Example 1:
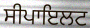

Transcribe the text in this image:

ਸੀਪਾਇਲਟ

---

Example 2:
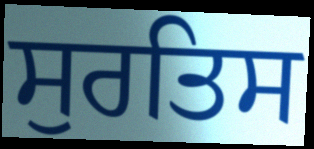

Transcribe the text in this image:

ਸੁਰਤਿਸ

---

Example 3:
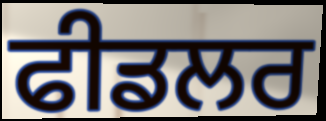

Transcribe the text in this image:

ਫੀਡਲਰ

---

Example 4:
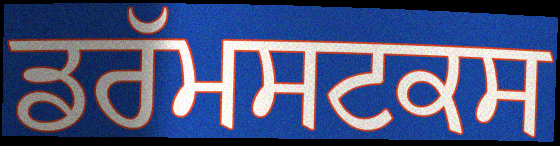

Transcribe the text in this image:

ਡਰੱਮਸਟਕਸ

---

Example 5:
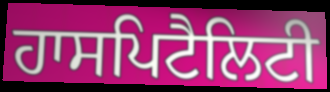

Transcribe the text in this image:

ਹਾਸਪਿਟੈਲਿਟੀ